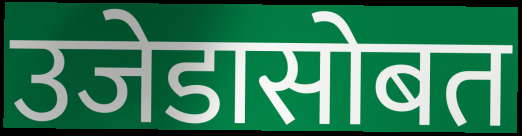
उजेडासोबत